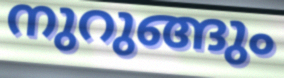
നുറുങ്ങും